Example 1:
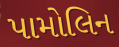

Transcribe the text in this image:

પામોલિન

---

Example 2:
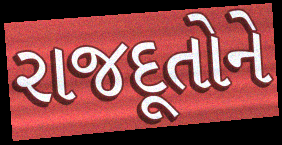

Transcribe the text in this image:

રાજદૂતોને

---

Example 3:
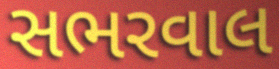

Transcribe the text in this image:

સભરવાલ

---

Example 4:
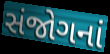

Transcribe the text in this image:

સંજોગનાં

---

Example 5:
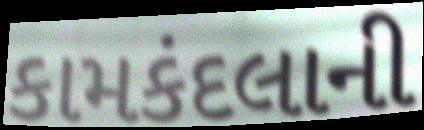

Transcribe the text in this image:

કામકંદલાની